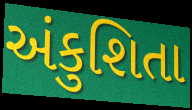
અંકુશિતા